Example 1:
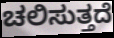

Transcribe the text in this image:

ಚಲಿಸುತ್ತದೆ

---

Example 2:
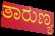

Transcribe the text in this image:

ತಾರುಣ್ಯ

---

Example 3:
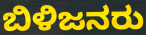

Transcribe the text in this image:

ಬಿಳಿಜನರು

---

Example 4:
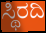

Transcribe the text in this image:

ಸ್ಥಿರದಿ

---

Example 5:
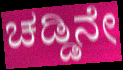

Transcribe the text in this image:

ಚಡ್ಡಿನೇ